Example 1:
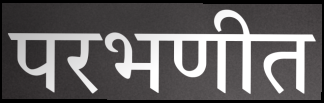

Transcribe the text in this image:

परभणीत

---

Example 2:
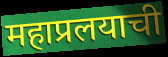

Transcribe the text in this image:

महाप्रलयाची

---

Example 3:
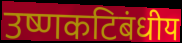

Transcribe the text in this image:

उष्णकटिबंधीय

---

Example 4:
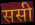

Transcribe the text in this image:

ससी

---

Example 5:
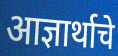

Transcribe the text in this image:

आज्ञार्थाचे